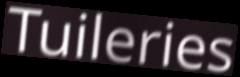
Tuileries